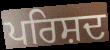
ਪਰਿਸ਼ਦ